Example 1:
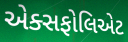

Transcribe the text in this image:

એક્સફોલિએટ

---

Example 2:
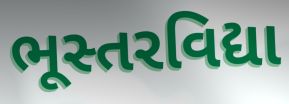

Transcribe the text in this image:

ભૂસ્તરવિદ્યા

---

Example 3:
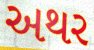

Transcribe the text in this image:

અથર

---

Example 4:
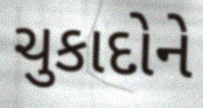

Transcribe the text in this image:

ચુકાદોને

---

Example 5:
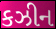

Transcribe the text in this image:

કઝીન